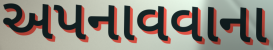
અપનાવવાના